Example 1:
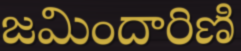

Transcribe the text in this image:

జమిందారిణి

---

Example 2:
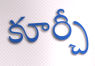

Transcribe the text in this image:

కూర్చీ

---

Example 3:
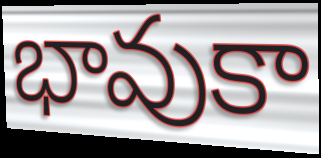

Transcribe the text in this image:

భావుకా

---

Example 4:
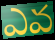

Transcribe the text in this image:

ఎవ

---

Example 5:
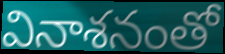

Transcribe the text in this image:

వినాశనంతో